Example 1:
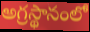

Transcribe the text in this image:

అగ్రస్థానంలో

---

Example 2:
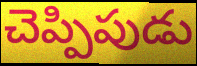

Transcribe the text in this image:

చెప్పిపుడు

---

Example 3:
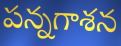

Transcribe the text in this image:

పన్నగాశన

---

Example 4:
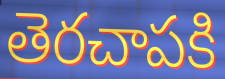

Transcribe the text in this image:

తెరచాపకి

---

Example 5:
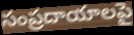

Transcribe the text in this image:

సంప్రదాయాలపై